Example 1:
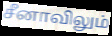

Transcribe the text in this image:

சீனாவிலும்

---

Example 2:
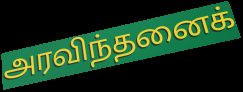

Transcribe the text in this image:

அரவிந்தனைக்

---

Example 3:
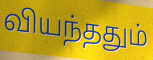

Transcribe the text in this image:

வியந்ததும்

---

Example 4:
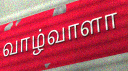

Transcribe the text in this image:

வாழ்வாளா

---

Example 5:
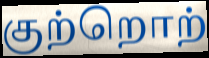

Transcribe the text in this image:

குற்றொற்